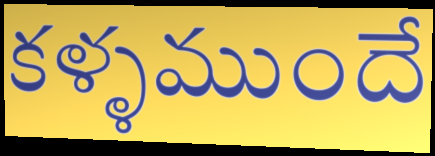
కళ్ళముందే